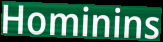
Hominins